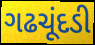
ગઢચૂંદડી